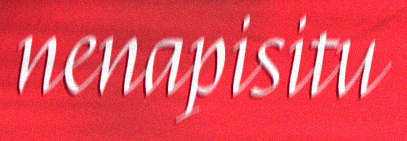
nenapisitu